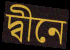
দ্বীনে